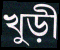
খুড়ী